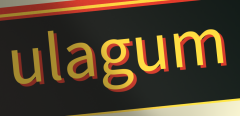
ulagum